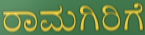
ರಾಮಗಿರಿಗೆ